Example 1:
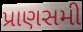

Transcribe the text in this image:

પ્રાણસમી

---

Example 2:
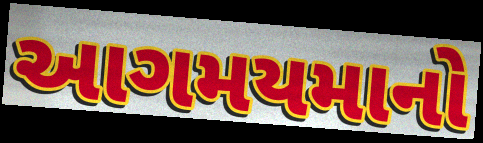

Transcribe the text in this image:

આગમયમાનો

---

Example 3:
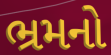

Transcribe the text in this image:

ભ્રમનો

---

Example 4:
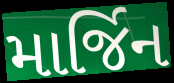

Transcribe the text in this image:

માર્જિન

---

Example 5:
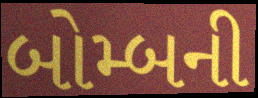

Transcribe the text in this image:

બોમ્બની